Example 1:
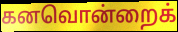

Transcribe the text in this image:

கனவொன்றைக்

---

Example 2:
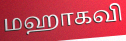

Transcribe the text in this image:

மஹாகவி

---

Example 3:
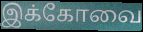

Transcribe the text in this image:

இக்கோவை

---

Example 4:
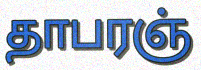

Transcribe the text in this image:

தாபரஞ்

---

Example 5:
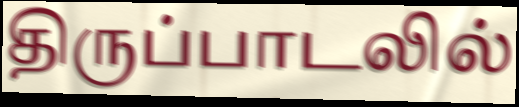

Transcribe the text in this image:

திருப்பாடலில்